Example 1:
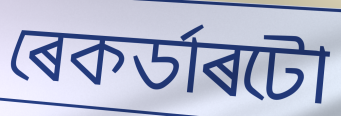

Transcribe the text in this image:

ৰেকৰ্ডাৰটো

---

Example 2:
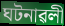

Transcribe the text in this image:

ঘটনাৱলী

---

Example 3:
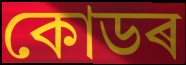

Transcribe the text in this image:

কোডৰ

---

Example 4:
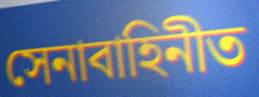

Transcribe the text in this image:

সেনাবাহিনীত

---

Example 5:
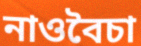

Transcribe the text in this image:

নাওবৈচা